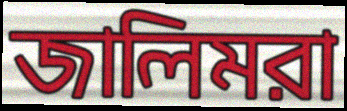
জালিমরা